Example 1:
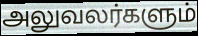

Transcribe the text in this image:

அலுவலர்களும்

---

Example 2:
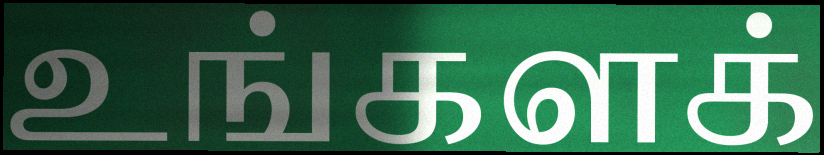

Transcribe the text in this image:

உங்களக்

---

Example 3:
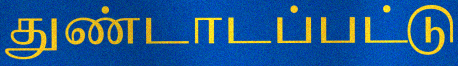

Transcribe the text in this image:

துண்டாடப்பட்டு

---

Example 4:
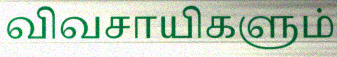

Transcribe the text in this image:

விவசாயிகளும்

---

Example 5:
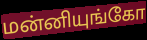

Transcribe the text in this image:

மன்னியுங்கோ